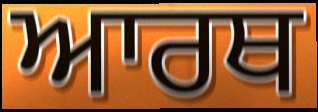
ਆਰਥ